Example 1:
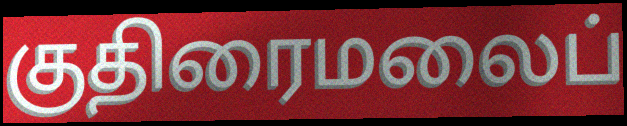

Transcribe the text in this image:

குதிரைமலைப்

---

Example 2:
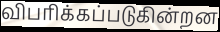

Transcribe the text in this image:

விபரிக்கப்படுகின்றன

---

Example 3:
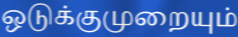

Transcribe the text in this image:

ஒடுக்குமுறையும்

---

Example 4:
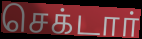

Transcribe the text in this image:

செக்டார்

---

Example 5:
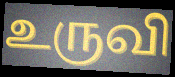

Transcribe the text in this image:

உருவி